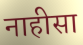
नाहीसा